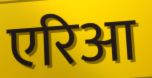
एरिआ